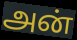
அன்